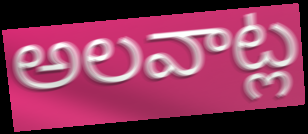
అలవాట్ల